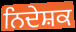
ਨਿਦੇਸ਼ਕ